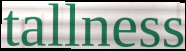
tallness